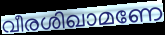
വീരശിഖാമണേ